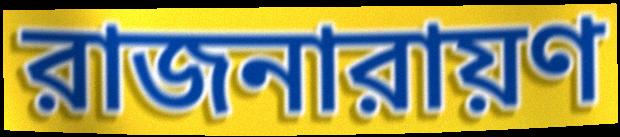
রাজনারায়ণ